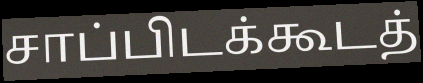
சாப்பிடக்கூடத்